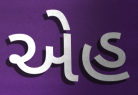
એહ